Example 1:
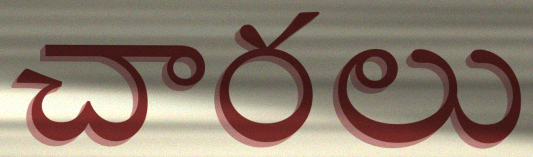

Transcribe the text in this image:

చారలు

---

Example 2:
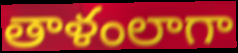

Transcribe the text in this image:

తాళంలాగా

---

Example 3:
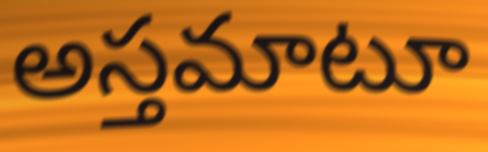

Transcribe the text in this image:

అస్తమాటూ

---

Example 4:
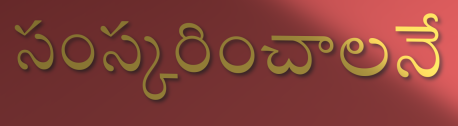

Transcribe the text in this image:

సంస్కరించాలనే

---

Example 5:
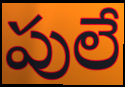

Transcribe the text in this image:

పులే